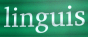
linguis